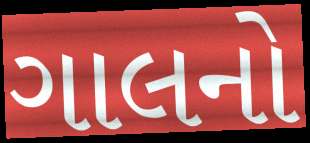
ગાલનો